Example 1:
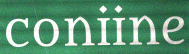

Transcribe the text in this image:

coniine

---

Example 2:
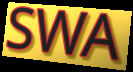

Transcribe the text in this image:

SWA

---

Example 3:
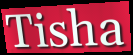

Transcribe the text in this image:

Tisha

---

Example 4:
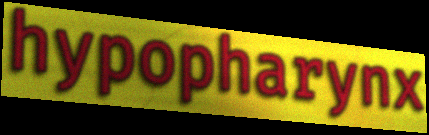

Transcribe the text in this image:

hypopharynx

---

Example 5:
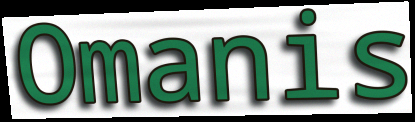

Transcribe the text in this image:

Omanis